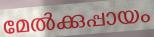
മേൽക്കുപ്പായം